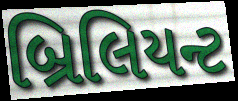
બ્રિલિયન્ટ